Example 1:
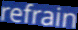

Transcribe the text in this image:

refrain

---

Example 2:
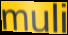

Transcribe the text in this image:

muli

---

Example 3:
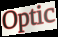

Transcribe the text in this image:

Optic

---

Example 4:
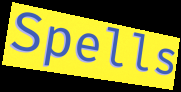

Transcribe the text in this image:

Spells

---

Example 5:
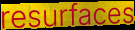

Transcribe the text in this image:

resurfaces